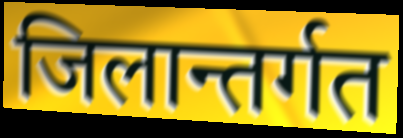
जिलान्तर्गत